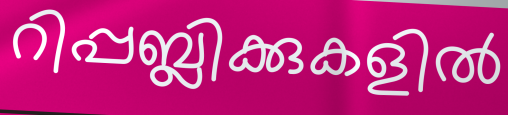
റിപ്പബ്ലിക്കുകളിൽ